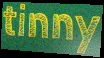
tinny